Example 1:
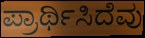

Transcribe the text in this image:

ಪ್ರಾರ್ಥಿಸಿದೆವು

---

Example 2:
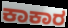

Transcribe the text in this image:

ಕಾಕಾರ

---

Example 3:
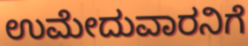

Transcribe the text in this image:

ಉಮೇದುವಾರನಿಗೆ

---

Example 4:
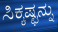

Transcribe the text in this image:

ಸಿಕ್ಕಷ್ಟನ್ನು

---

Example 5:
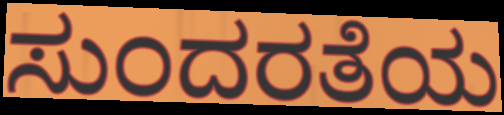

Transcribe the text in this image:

ಸುಂದರತೆಯ